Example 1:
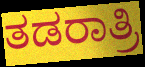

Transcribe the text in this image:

ತಡರಾತ್ರಿ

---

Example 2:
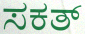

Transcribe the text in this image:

ಸಕತ್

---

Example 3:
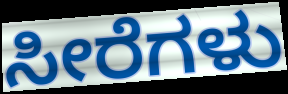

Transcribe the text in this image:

ಸೀರೆಗಳು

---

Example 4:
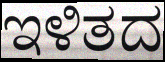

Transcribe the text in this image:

ಇಳಿತದ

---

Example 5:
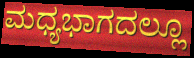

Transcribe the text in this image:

ಮಧ್ಯಭಾಗದಲ್ಲೂ